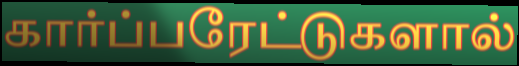
கார்ப்பரேட்டுகளால்